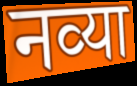
नव्‍या